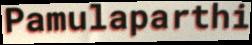
Pamulaparthi